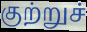
குற்றுச்